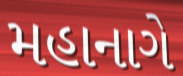
મહાનાગે